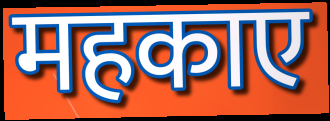
महकाए